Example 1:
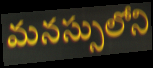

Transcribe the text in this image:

మనస్సులోని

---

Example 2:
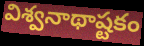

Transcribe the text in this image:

విశ్వనాథాష్టకం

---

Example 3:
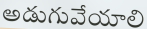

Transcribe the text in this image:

అడుగువేయాలి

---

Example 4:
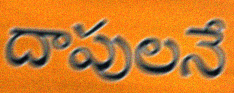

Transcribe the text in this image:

దాపులనే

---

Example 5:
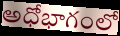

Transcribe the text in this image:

అధోభాగంలో